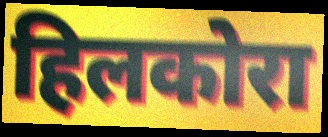
हिलकोरा